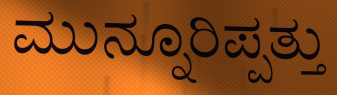
ಮುನ್ನೂರಿಪ್ಪತ್ತು